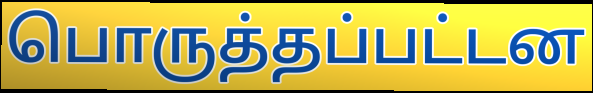
பொருத்தப்பட்டன